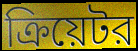
ক্রিয়েটর